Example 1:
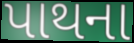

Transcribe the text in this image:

પાથના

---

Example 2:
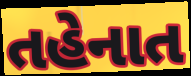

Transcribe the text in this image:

તહેનાત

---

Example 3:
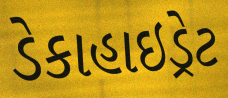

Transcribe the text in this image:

ડેકાહાઇડ્રેટ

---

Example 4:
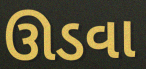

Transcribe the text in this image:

ઊડવા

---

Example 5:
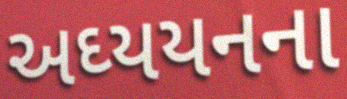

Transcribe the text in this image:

અઘ્યયનના